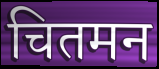
चितमन